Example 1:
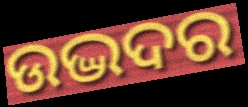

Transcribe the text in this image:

ଉଦ୍ଭଦର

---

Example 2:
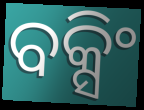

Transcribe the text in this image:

ବକ୍ସିଂ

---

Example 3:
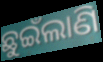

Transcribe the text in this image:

ଛୁଇଁଲାଣି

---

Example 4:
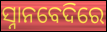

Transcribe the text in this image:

ସ୍ନାନବେଦିରେ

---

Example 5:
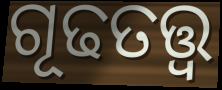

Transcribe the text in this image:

ଗୂଢତତ୍ତ୍ୱ